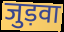
जुड़वा